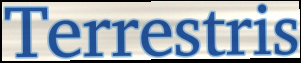
Terrestris